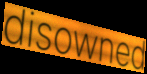
disowned